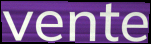
vente